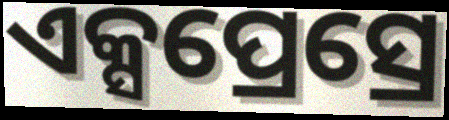
ଏକ୍ସପ୍ରେସ୍ରେ